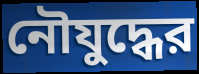
নৌযুদ্ধের